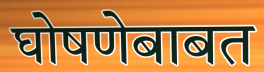
घोषणेबाबत